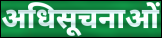
अधिसूचनाओं